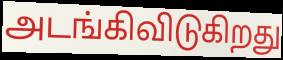
அடங்கிவிடுகிறது